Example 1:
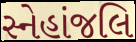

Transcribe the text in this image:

સ્નેહાંજલિ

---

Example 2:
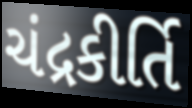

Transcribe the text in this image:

ચંદ્રકીર્તિ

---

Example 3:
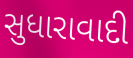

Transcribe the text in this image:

સુધારાવાદી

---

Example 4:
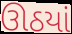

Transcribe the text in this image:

ઊઠયાં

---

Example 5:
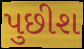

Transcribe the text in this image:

પુછીશ